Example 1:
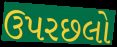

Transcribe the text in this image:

ઉપરછલો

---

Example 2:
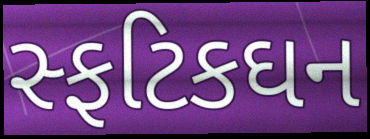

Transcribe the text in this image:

સ્ફટિકઘન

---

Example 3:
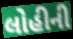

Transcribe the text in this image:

લોહીની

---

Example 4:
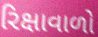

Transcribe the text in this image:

રિક્ષાવાળો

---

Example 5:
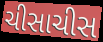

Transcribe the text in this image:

ચીસાચીસ